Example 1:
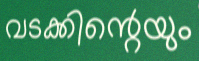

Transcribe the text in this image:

വടക്കിന്റെയും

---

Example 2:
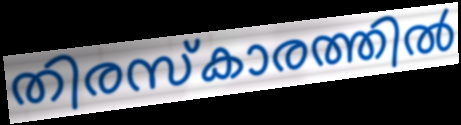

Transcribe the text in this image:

തിരസ്കാരത്തിൽ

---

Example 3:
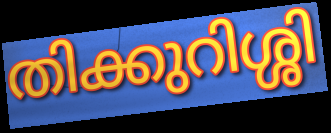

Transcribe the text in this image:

തിക്കുറിശ്ശി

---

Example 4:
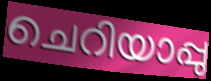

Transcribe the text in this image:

ചെറിയാപ്പു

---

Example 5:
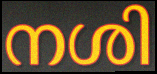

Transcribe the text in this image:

നശി